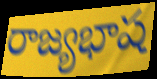
రాజ్యభాష